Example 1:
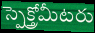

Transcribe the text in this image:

స్పెక్త్రోమీటరు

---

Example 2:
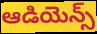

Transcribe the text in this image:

ఆడియెన్స్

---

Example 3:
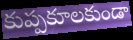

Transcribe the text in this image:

కుప్పకూలకుండా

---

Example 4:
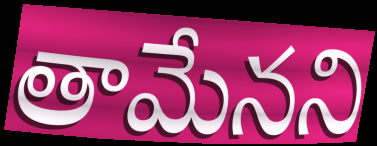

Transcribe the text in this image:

తామేనని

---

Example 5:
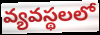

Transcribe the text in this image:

వ్యవస్థలలో